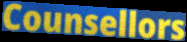
Counsellors